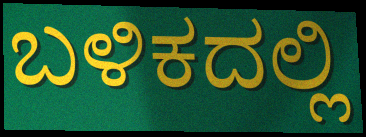
ಬಳಿಕದಲ್ಲಿ